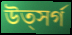
উত্সর্গ